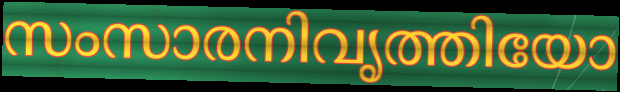
സംസാരനിവൃത്തിയോ